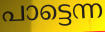
പാട്ടെന്ന